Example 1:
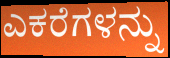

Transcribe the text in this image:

ಎಕರೆಗಳನ್ನು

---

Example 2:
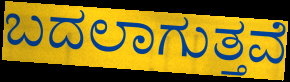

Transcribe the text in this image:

ಬದಲಾಗುತ್ತವೆ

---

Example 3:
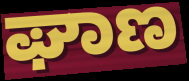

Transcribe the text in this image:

ಘಾಣ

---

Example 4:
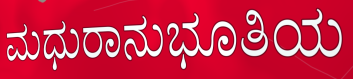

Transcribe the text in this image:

ಮಧುರಾನುಭೂತಿಯ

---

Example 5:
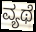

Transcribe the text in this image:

ವ್ಯಥೆ